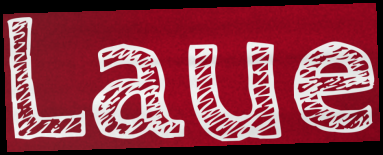
Laue